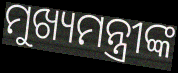
ମୁଖ୍ୟମନ୍ତ୍ରୀଙ୍କ